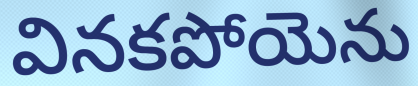
వినకపోయెను